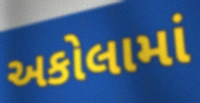
અકોલામાં